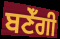
ਬਣੇਁਗੀ